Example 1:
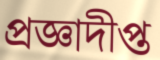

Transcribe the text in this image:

প্রজ্ঞাদীপ্ত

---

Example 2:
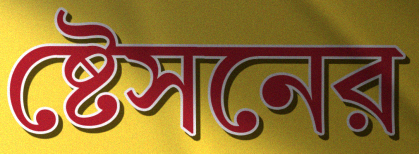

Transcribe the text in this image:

ষ্টেসনের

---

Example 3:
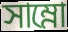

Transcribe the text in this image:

সাম্নো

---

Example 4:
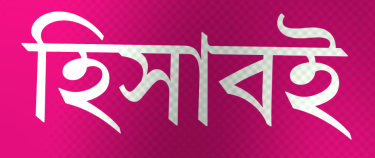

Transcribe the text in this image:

হিসাবই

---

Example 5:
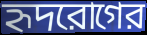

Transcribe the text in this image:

হৃদরোগের